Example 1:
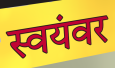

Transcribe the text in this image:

स्वयंवर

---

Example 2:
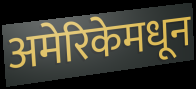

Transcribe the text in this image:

अमेरिकेमधून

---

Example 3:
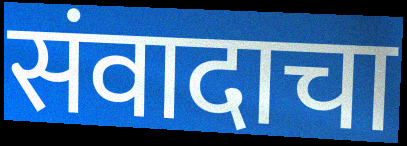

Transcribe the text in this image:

संवादाचा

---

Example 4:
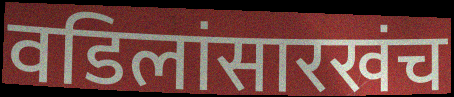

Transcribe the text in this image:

वडिलांसारखंच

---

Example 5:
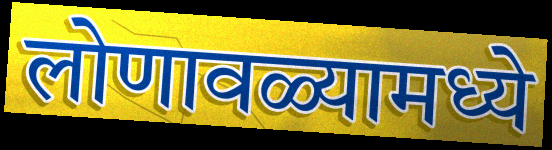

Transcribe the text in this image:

लोणावळ्यामध्ये